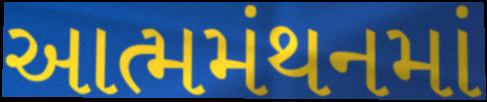
આત્મમંથનમાં